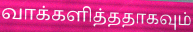
வாக்களித்ததாகவும்